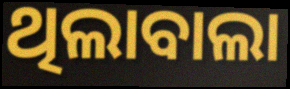
ଥିଲାବାଲା